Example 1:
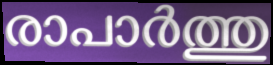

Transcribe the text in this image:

രാപാർത്തു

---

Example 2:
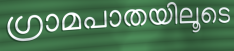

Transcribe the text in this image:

ഗ്രാമപാതയിലൂടെ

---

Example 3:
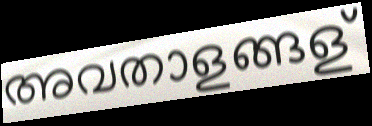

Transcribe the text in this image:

അവതാളങ്ങള്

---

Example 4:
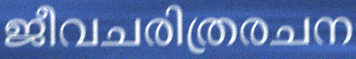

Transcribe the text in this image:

ജീവചരിത്രരചന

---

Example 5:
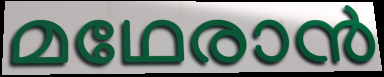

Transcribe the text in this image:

മഥേരാൻ